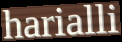
harialli